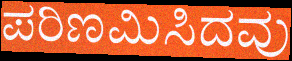
ಪರಿಣಮಿಸಿದವು